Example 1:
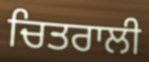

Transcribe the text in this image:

ਚਿਤਰਾਲੀ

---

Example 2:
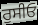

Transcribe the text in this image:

ਰੁਸੀਓ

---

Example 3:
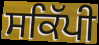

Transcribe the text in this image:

ਸਕਿੱਪੀ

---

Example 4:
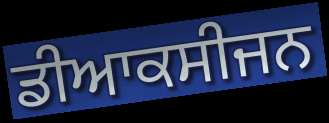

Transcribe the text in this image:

ਡੀਆਕਸੀਜਨ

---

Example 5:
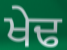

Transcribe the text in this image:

ਖੇਢ